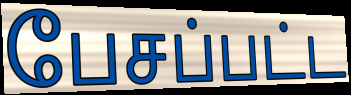
பேசப்பட்ட